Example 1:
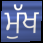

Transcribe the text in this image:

ਮੁੱਖ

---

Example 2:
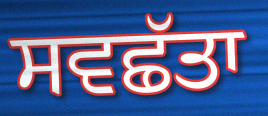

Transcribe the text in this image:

ਸਵਛੱਤਾ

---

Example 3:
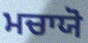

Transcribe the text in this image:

ਮਚਾਯੋ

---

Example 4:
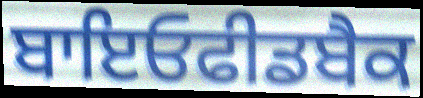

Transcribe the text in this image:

ਬਾਇਓਫੀਡਬੈਕ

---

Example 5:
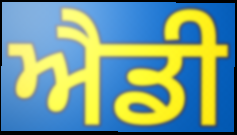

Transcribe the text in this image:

ਐਡੀ